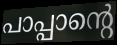
പാപ്പാന്റെ